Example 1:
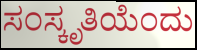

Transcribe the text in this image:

ಸಂಸ್ಕೃತಿಯೆಂದು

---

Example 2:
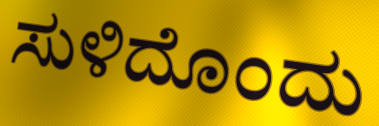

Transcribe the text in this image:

ಸುಳಿದೊಂದು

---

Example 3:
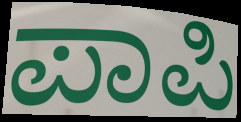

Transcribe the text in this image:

ಪಾಪಿ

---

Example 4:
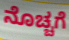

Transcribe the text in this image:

ನೊಚ್ಚಗೆ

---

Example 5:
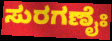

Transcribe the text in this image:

ಸುರಗಣೈಃ